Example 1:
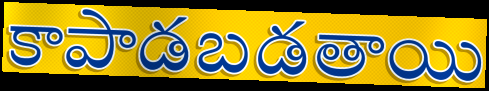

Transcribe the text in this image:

కాపాడబడతాయి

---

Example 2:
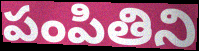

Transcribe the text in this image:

పంపితిని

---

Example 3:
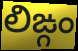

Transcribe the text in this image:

లిఙ్గం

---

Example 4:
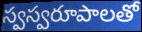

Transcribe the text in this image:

స్వస్వరూపాలతో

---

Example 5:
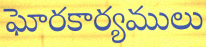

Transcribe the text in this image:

ఘోరకార్యములు